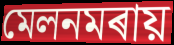
মেলনমৰায়